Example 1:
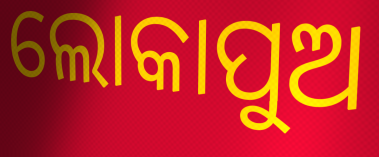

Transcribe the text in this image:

ଲୋକାପୁଅ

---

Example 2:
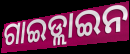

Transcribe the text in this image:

ଗାଇଡ୍ଲାଇନ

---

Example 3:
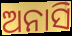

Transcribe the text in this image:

ଅନାସି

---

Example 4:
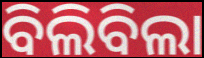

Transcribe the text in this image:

ବିଲିବିଲା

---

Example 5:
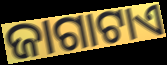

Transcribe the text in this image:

ଜାଗାଟାଏ